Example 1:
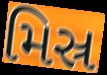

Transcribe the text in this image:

મિસ્ર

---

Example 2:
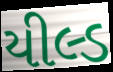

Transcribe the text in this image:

યીલ્ડ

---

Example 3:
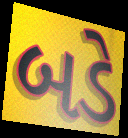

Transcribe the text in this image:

બડે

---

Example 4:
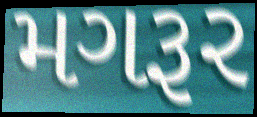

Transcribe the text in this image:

મગરૂર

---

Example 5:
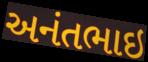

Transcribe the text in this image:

અનંતભાઇ